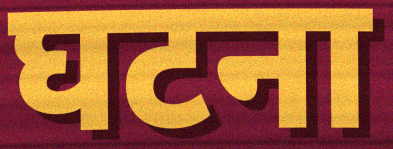
घटना